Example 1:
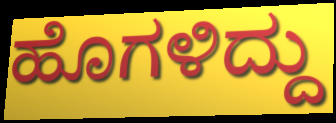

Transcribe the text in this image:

ಹೊಗಳಿದ್ದು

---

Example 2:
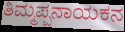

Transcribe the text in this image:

ತಿಮ್ಮಪ್ಪನಾಯಕನ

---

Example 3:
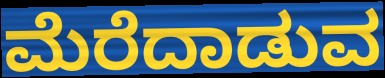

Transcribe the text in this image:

ಮೆರೆದಾಡುವ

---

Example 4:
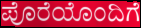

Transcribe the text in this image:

ಪೊರೆಯೊಂದಿಗೆ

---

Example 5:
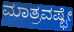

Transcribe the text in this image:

ಮಾತ್ರವಷ್ಟೇ